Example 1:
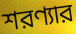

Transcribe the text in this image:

শরণ্যার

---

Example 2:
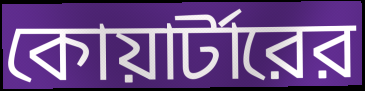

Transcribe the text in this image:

কোয়ার্টারের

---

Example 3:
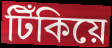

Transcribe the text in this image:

টিঁকিয়ে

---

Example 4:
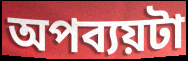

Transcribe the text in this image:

অপব্যয়টা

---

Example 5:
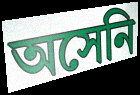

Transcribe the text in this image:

অসেনি